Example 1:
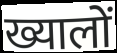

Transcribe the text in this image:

ख्यालों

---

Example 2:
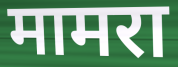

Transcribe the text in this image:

मामरा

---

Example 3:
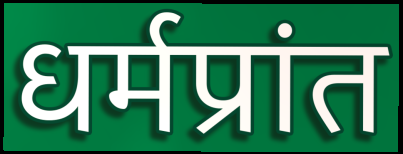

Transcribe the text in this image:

धर्मप्रांत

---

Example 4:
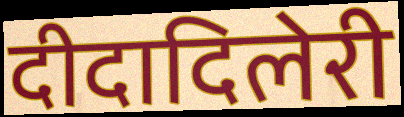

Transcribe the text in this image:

दीदादिलेरी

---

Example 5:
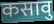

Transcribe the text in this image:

कसावु